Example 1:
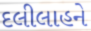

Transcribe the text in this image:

દલીલાહને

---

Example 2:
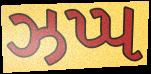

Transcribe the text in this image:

ઝપ્પ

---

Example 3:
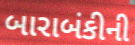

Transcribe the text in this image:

બારાબંકીની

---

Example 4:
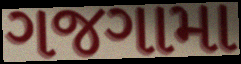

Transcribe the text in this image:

ગજગામા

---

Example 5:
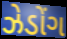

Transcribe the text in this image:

ઝેડોંગ